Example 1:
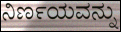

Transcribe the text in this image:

ನಿರ್ಣಯವನ್ನು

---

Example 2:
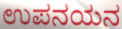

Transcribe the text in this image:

ಉಪನಯನ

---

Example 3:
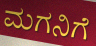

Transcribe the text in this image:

ಮಗನಿಗೆ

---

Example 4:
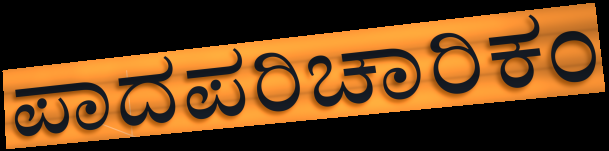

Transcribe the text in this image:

ಪಾದಪರಿಚಾರಿಕಂ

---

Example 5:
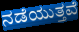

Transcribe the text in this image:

ನಡೆಯುತ್ತವೆ